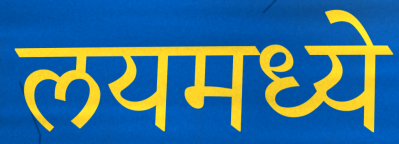
लयमध्ये